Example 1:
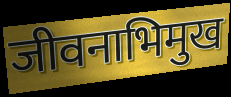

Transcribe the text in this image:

जीवनाभिमुख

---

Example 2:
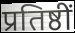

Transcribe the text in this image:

प्रतिष्ठीं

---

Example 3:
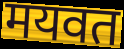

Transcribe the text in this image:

मयवत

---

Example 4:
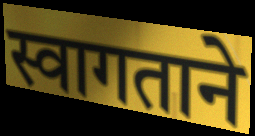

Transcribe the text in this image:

स्वागताने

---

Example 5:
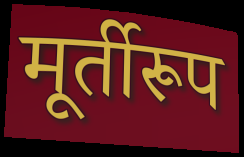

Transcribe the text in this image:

मूर्तीरूप